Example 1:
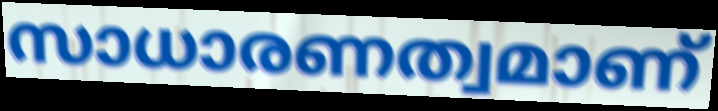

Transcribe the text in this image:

സാധാരണത്വമാണ്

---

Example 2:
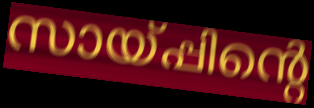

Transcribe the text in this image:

സായ്പ്പിന്റെ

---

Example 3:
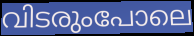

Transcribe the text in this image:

വിടരുംപോലെ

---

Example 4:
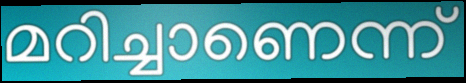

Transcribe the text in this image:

മറിച്ചാണെന്ന്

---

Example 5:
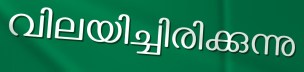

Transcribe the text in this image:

വിലയിച്ചിരിക്കുന്നു